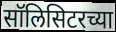
सॉलिसिटरच्या